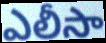
ఎలీసా